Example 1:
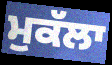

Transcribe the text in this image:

ਮੁਕੱਲਾ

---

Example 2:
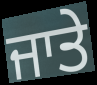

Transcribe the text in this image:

ਜਾਤੇ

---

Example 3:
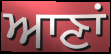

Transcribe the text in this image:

ਆਣਾਂ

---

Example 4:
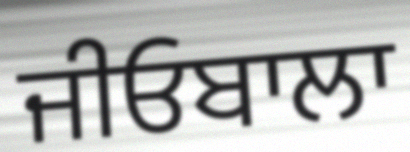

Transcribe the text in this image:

ਜੀਓਬਾਲਾ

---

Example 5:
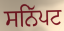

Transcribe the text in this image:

ਸਨਿੱਪਟ